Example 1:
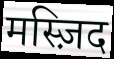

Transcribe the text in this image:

मस्ज़िद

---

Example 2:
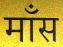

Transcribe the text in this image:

माँस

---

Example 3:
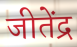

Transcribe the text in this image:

जीतेंद्र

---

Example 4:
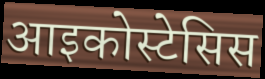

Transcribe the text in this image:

आइकोस्टेसिस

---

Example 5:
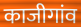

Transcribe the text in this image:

काजीगांव